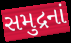
સમુદ્રનાં